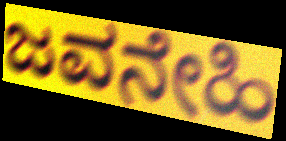
ಜವನೇಹಿ